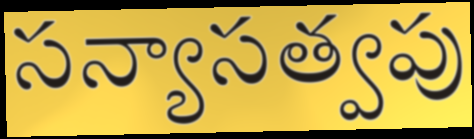
సన్యాసత్వపు